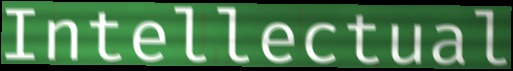
Intellectual